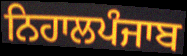
ਨਿਹਾਲਪੰਜਾਬ